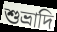
শুভ্রাদি